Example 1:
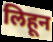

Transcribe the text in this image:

लिहून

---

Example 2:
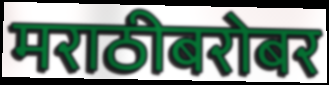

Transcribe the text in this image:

मराठीबरोबर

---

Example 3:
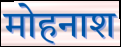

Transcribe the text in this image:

मोहनाश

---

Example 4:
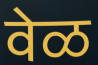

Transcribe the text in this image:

वेळ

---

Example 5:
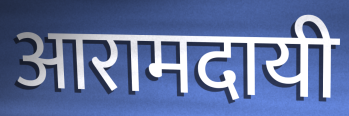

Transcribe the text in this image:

आरामदायी